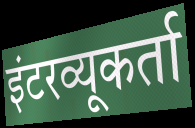
इंटरव्यूकर्ता